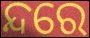
ନ୍ଦରେ